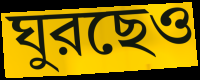
ঘুরছেও